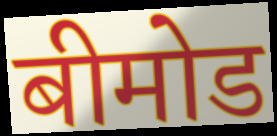
बीमोड